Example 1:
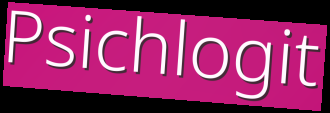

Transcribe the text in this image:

Psichlogit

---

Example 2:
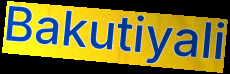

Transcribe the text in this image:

Bakutiyali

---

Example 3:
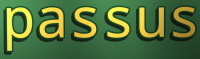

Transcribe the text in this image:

passus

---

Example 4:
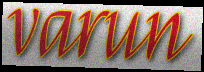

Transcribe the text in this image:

varun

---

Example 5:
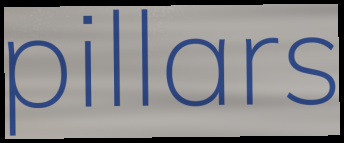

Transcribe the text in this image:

pillars